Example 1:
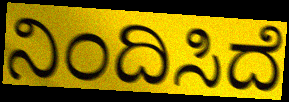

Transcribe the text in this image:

ನಿಂದಿಸಿದೆ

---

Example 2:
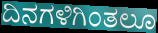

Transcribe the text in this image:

ದಿನಗಳಿಗಿಂತಲೂ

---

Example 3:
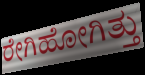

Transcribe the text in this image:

ರೇಗಿಹೋಗಿತ್ತು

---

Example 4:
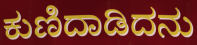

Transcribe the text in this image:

ಕುಣಿದಾಡಿದನು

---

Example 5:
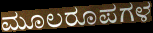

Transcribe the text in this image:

ಮೂಲರೂಪಗಳ